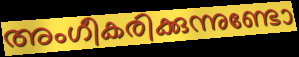
അംഗീകരിക്കുന്നുണ്ടോ